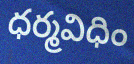
ధర్మవిధిం